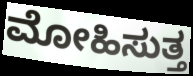
ಮೋಹಿಸುತ್ತ